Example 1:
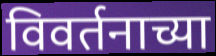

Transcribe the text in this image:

विवर्तनाच्या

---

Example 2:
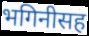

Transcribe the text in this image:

भगिनीसह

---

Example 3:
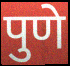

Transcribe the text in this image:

पुणे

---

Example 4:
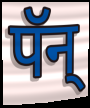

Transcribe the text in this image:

पॅन्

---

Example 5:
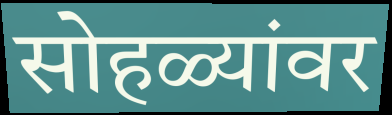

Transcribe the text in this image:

सोहळ्यांवर